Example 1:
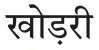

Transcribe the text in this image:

खोड़री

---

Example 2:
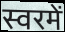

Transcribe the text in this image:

स्वरमें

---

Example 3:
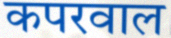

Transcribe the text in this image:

कपरवाल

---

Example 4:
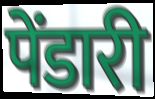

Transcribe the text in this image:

पेंडारी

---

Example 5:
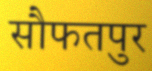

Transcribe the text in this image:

सौफतपुर